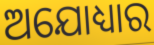
ଅଯୋଧ୍ୟାର